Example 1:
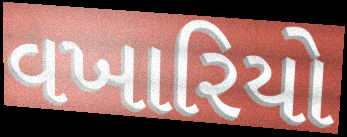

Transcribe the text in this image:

વખારિયો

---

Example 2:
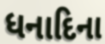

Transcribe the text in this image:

ધનાદિના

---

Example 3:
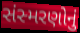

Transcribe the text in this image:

સંસ્મરણોનું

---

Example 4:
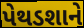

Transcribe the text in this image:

પેથડશાને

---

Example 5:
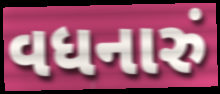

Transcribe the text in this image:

વધનારું